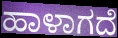
ಹಾಳಾಗದೆ